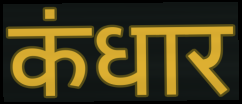
कंधार